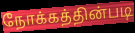
நோக்கத்தின்படி